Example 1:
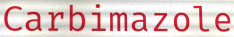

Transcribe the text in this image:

Carbimazole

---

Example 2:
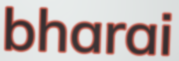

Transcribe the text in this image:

bharai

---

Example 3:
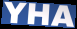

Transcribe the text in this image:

YHA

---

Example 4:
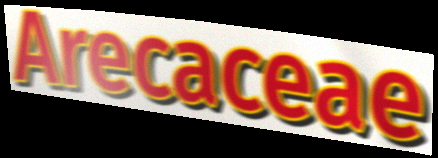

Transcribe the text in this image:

Arecaceae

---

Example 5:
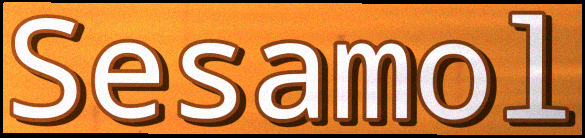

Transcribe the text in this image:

Sesamol